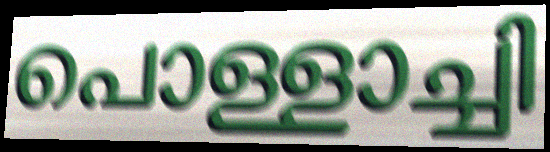
പൊള്ളാച്ചി